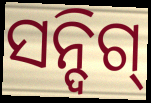
ସନ୍ଦିଗ୍